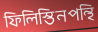
ফিলিস্তিনপন্থি